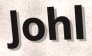
Johl